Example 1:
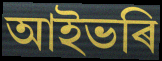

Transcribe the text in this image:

আইভৰি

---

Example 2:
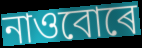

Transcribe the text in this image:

নাওবোৰে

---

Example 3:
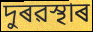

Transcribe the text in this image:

দুৰৱস্থাৰ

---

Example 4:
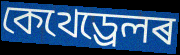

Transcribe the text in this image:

কেথেড্ৰেলৰ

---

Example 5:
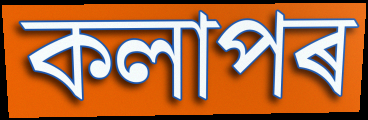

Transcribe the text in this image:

কলাপৰ